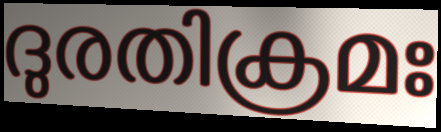
ദുരതിക്രമഃ